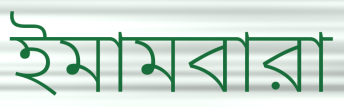
ইমামবারা